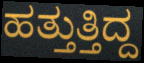
ಹತ್ತುತ್ತಿದ್ದ